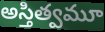
అస్తిత్వమూ